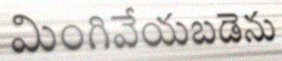
మింగివేయబడెను